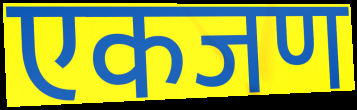
एकजण